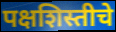
पक्षशिस्तीचे